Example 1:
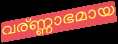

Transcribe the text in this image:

വര്ണ്ണാഭമായ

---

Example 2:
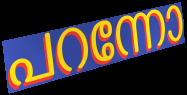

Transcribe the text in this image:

പറന്നോ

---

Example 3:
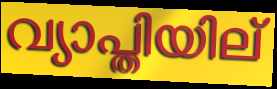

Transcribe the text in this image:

വ്യാപ്തിയില്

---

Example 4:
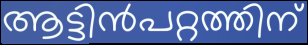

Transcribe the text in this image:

ആട്ടിൻപറ്റത്തിന്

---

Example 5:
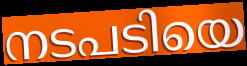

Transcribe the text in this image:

നടപടിയെ